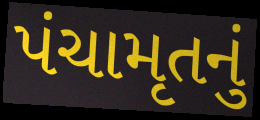
પંચામૃતનું